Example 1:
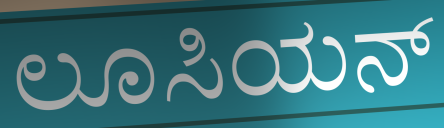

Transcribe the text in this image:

ಲೂಸಿಯನ್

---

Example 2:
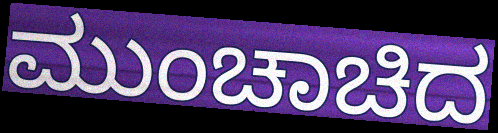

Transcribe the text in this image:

ಮುಂಚಾಚಿದ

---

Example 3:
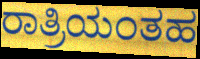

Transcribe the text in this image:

ರಾತ್ರಿಯಂತಹ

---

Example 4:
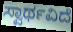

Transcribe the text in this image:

ಸ್ವಾರ್ಥವಿದೆ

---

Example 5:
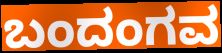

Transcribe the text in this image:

ಬಂದಂಗವ